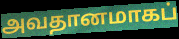
அவதானமாகப்